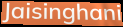
Jaisinghani